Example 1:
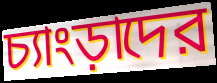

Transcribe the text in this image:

চ্যাংড়াদের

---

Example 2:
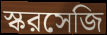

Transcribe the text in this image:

স্করসেজি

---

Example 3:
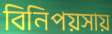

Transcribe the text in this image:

বিনিপয়সায়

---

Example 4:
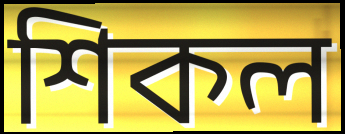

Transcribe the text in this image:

শিকল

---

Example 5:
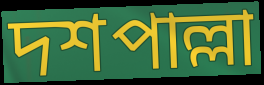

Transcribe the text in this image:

দশপাল্লা